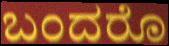
ಬಂದರೊ